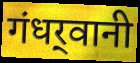
गंधर्वानी